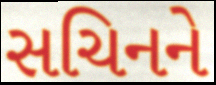
સચિનને